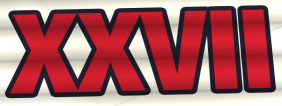
XXVII